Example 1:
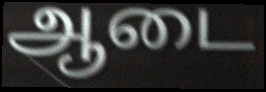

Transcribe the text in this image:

ஆடை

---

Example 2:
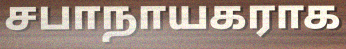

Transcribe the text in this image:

சபாநாயகராக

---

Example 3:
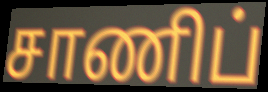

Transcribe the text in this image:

சாணிப்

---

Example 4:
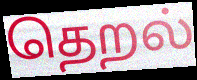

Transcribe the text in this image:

தெறல்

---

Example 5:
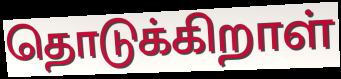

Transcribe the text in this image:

தொடுக்கிறாள்